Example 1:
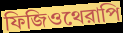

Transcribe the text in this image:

ফিজিওথেরাপি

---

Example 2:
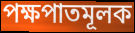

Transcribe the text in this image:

পক্ষপাতমূলক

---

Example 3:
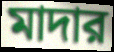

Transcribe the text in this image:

মাদার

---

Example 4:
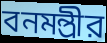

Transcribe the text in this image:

বনমন্ত্রীর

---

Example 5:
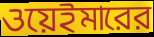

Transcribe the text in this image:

ওয়েইমারের